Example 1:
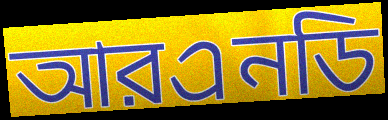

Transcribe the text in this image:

আরএনডি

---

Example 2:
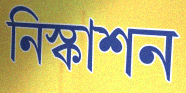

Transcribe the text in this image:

নিস্কাশন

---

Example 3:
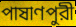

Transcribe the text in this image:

পাষাণপুরী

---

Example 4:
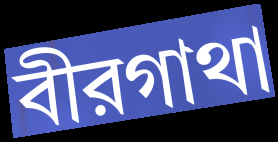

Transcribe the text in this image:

বীরগাথা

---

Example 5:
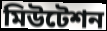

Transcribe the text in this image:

মিউটেশন